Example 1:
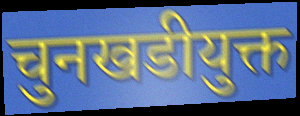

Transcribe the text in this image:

चुनखडीयुक्त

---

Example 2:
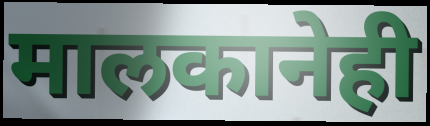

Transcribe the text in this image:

मालकानेही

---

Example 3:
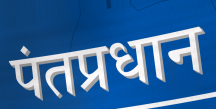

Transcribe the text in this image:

पंतप्रधान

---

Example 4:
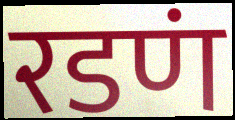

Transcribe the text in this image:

रडणं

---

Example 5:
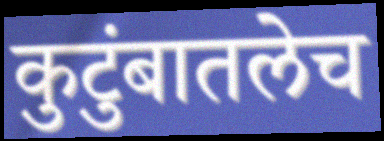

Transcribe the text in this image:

कुटुंबातलेच